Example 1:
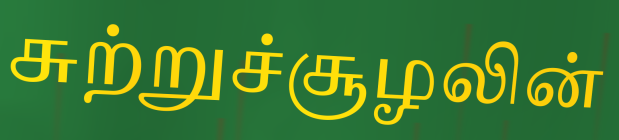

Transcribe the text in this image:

சுற்றுச்சூழலின்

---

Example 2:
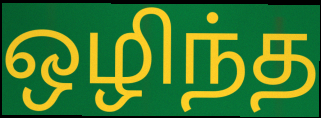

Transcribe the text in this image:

ஒழிந்த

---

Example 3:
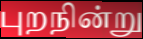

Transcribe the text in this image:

புறநின்று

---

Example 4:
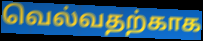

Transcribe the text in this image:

வெல்வதற்காக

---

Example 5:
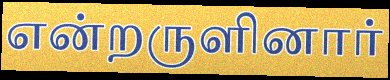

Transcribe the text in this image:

என்றருளினார்